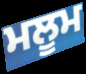
ਮਲੂਮ